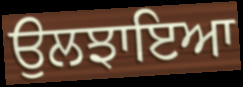
ਉਲਝਾਇਆ